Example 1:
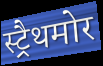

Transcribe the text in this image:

स्ट्रैथमोर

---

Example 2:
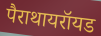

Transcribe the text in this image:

पैराथायरॉयड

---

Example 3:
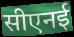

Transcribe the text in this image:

सीएनई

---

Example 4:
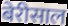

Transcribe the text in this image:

बेरीसाल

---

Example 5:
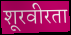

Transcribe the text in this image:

शूरवीरता